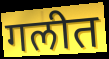
गलीत